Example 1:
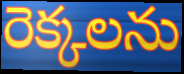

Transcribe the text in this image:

రెక్కలను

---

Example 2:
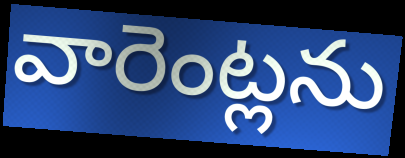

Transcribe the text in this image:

వారెంట్లను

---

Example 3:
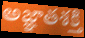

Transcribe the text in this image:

అజ్ఞాతశక్తి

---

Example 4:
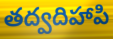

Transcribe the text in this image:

తద్వదిహాపి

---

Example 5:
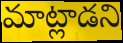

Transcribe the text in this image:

మాట్లాడని